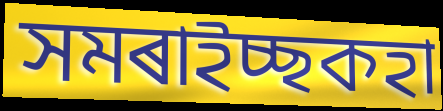
সমৰাইচ্ছকহা